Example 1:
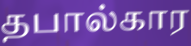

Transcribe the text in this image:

தபால்கார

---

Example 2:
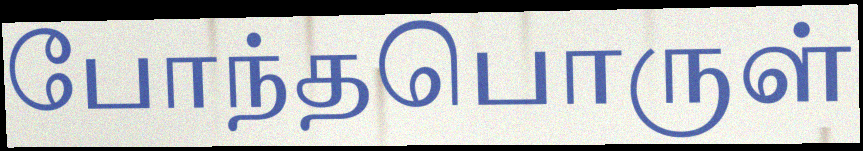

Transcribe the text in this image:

போந்தபொருள்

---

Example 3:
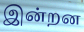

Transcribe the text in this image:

இன்றன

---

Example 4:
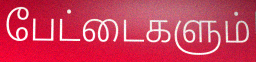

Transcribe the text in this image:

பேட்டைகளும்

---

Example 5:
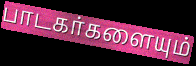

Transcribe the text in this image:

பாடகர்களையும்